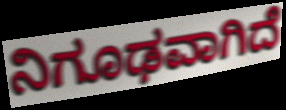
ನಿಗೂಢವಾಗಿದೆ